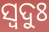
ସ୍ବଦୁଃ